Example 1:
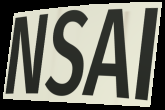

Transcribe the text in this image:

NSAI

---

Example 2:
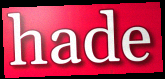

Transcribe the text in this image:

hade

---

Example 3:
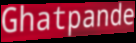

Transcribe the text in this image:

Ghatpande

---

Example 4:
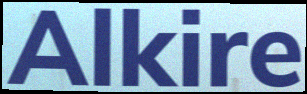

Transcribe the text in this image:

Alkire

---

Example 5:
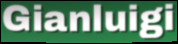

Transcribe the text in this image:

Gianluigi